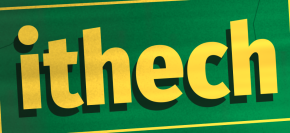
ithech